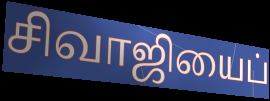
சிவாஜியைப்